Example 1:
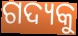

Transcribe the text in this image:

ଗଦ୍ୟକୁ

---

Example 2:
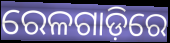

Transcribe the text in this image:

ରେଳଗାଡ଼ିରେ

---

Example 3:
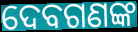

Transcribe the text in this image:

ଦେବଗଣଙ୍କ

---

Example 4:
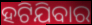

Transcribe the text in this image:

ହଟିଯିବାର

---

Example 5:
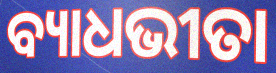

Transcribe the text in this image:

ବ୍ୟାଧଭୀତା